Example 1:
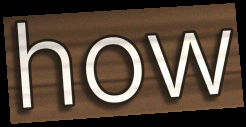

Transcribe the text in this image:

how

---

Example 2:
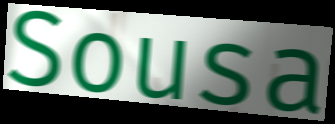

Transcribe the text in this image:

Sousa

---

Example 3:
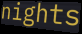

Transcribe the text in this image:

nights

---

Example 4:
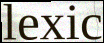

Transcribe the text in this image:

lexic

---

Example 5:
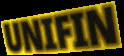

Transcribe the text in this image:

UNIFIN